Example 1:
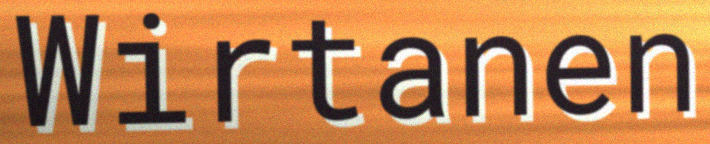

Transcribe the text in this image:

Wirtanen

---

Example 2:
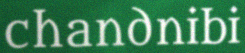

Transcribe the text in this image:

chandnibi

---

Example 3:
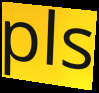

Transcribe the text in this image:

pls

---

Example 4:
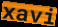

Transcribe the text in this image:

xavi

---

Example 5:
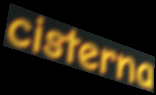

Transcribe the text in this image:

cisterna